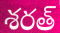
శరత్